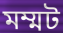
মম্মট